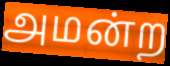
அமன்ற